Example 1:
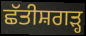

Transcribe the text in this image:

ਛੱਤੀਸ਼ਗੜ੍ਹ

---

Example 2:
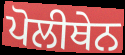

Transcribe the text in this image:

ਪੋਲੀਥੇਨ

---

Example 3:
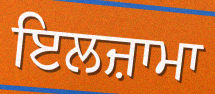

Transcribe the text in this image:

ਇਲਜ਼ਾਮਾ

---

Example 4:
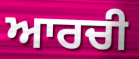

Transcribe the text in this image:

ਆਰਚੀ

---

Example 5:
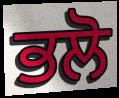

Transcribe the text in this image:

ਭਲੋ